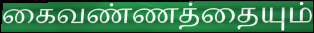
கைவண்ணத்தையும்